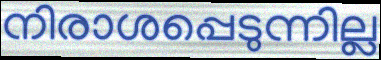
നിരാശപ്പെടുന്നില്ല